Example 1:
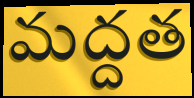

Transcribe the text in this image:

మద్దత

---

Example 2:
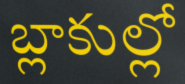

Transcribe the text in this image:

బ్లాకుల్లో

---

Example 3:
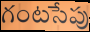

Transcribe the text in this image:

గంటసేపు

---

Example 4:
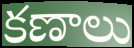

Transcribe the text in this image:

కణాలు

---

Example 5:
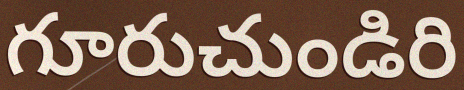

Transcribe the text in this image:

గూరుచుండిరి